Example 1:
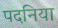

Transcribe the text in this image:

पदनिया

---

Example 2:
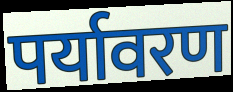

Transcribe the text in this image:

पर्यावरण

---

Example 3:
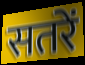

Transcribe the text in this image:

सतरें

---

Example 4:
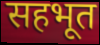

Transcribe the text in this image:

सहभूत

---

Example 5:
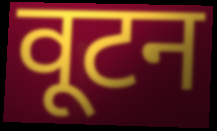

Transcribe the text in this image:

वूटन